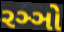
રઞ્ઞો